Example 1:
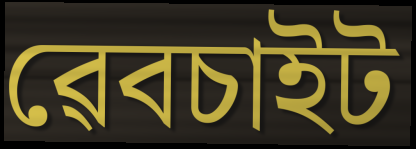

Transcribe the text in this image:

ৱেবচাইট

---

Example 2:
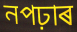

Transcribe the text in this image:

নপঢ়াৰ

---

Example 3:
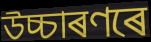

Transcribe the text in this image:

উচ্চাৰণৰে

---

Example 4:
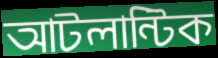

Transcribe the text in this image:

আটলান্টিক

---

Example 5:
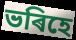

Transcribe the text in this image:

ভৰিহে